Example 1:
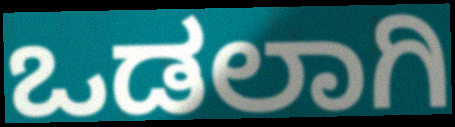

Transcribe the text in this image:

ಒಡಲಾಗಿ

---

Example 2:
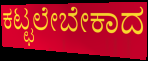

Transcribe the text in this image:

ಕಟ್ಟಲೇಬೇಕಾದ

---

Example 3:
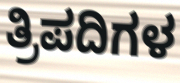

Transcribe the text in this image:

ತ್ರಿಪದಿಗಳ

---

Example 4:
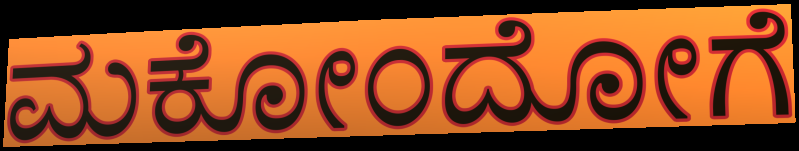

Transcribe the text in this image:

ಮಕೋಂದೋಗೆ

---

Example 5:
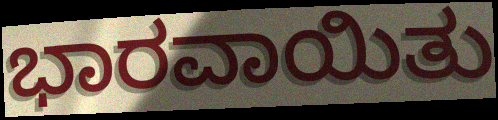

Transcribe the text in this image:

ಭಾರವಾಯಿತು